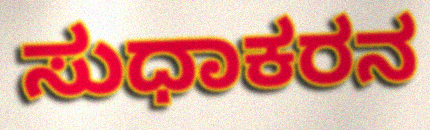
ಸುಧಾಕರನ